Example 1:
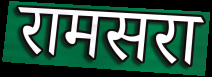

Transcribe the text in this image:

रामसरा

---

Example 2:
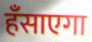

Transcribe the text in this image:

हँसाएगा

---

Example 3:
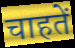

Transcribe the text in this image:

चाहतें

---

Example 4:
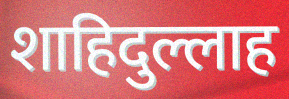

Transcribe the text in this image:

शाहिदुल्लाह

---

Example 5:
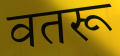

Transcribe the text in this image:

वतरू